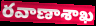
రవాణాశాఖ